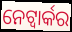
ନେଟ୍ୱାର୍କର